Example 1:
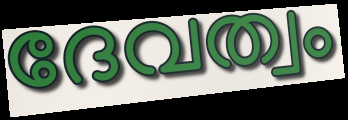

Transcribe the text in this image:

ദേവത്വം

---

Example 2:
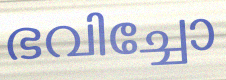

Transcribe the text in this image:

ഭവിച്ചോ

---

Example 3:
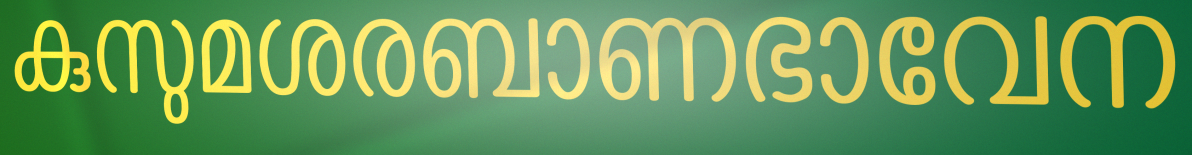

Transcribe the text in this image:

കുസുമശരബാണഭാവേന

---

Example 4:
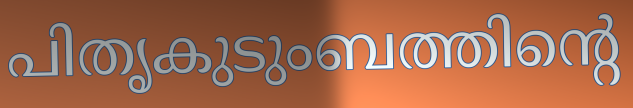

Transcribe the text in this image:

പിതൃകുടുംബത്തിന്റെ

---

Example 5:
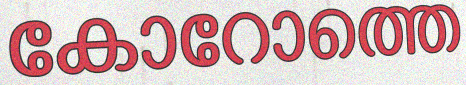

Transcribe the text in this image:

കോറോത്തെ